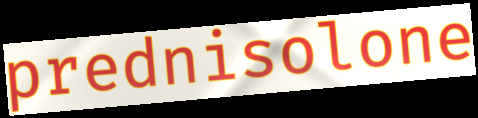
prednisolone